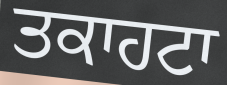
ਤਕਾਹਟਾ